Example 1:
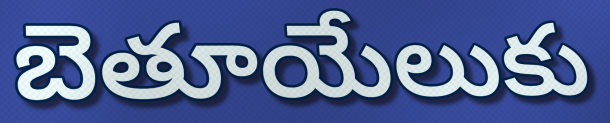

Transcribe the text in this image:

బెతూయేలుకు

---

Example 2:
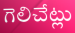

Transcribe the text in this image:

గెలిచేట్లు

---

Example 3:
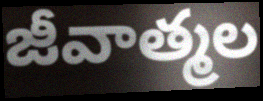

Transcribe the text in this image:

జీవాత్మల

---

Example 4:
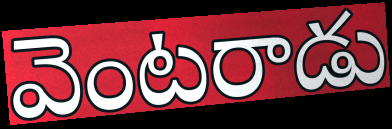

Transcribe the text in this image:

వెంటరాడు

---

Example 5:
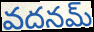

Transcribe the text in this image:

వదనమ్